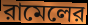
রামেলের